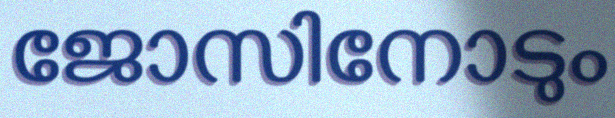
ജോസിനോടും